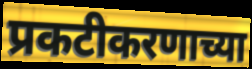
प्रकटीकरणाच्या